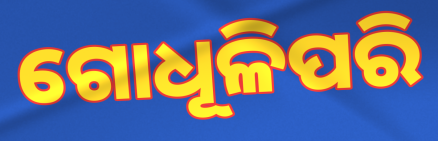
ଗୋଧୂଳିପରି